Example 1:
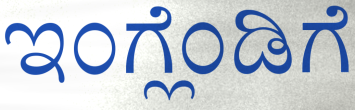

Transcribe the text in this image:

ಇಂಗ್ಲೆಂಡಿಗೆ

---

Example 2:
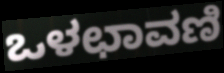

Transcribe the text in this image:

ಒಳಛಾವಣಿ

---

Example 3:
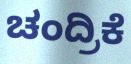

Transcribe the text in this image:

ಚಂದ್ರಿಕೆ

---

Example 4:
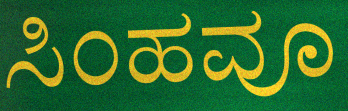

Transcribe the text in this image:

ಸಿಂಹವೂ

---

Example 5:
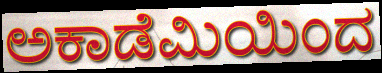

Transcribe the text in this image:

ಅಕಾಡೆಮಿಯಿಂದ